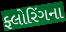
ફ્લોરિંગના